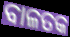
ବାଳତକ